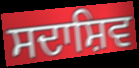
ਸਦਾਸ਼ਿਵ